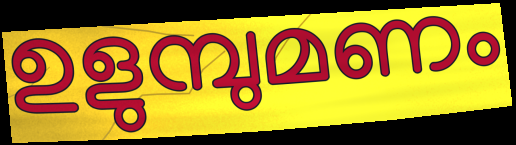
ഉളുമ്പുമണം